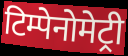
टिम्पेनोमेट्री